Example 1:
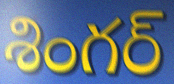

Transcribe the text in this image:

శింగర్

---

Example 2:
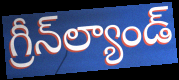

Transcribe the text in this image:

గ్రీన్‌ల్యాండ్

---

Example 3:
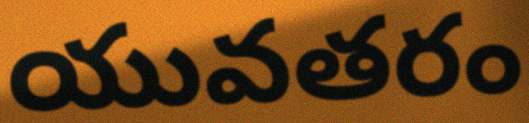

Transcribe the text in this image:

యువతరం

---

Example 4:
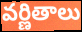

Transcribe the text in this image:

వర్ణితాలు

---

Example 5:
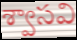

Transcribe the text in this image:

శ్వాసవి